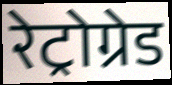
रेट्रोग्रेड